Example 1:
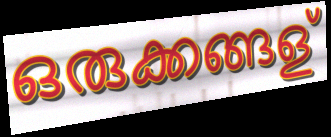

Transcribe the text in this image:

ഒരുക്കങ്ങള്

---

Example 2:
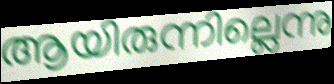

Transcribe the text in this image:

ആയിരുന്നില്ലെന്നു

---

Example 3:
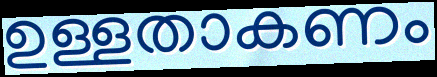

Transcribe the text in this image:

ഉള്ളതാകണം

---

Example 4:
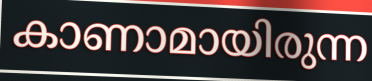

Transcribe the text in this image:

കാണാമായിരുന്ന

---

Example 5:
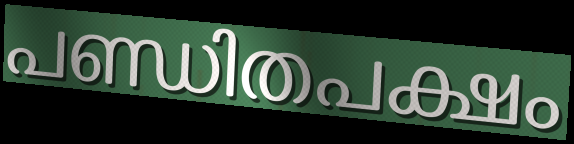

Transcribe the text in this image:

പണ്ഡിതപക്ഷം